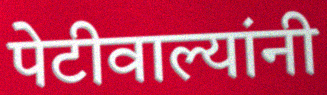
पेटीवाल्यांनी